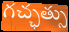
గచ్ఛత్సు